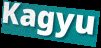
Kagyu